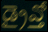
డ్రైవ్తో